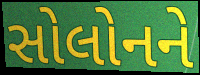
સોલોનને